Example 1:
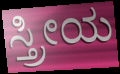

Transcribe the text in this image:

ಸ್ತ್ರೀಯ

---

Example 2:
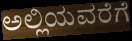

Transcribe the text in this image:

ಅಲ್ಲಿಯವರೆಗೆ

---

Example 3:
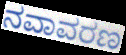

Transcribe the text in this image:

ನವಾವರಣ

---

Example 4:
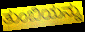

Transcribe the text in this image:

ತುಂಬಿಯನ್ನು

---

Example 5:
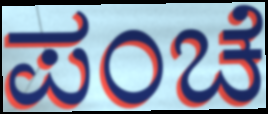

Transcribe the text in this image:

ಪಂಚೆ